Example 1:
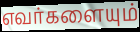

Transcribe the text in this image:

எவர்களையும்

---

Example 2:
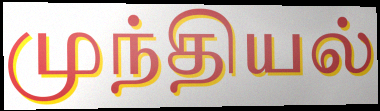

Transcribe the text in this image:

முந்தியல்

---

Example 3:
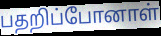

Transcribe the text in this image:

பதறிப்போனாள்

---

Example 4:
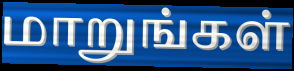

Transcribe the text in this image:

மாறுங்கள்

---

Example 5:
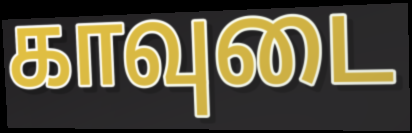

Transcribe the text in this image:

காவுடை